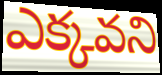
ఎక్కవని